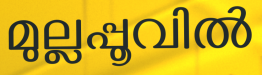
മുല്ലപ്പൂവിൽ